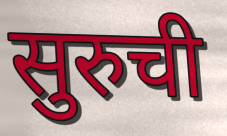
सुरुची